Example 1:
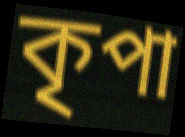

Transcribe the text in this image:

কৃপা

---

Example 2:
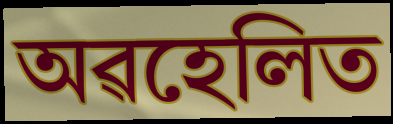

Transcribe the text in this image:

অৱহেলিত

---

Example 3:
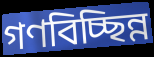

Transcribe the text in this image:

গণবিচ্ছিন্ন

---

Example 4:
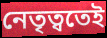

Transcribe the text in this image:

নেতৃত্বতেই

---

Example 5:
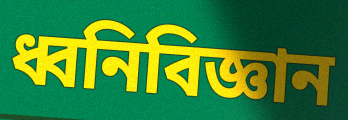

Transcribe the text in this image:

ধ্বনিবিজ্ঞান